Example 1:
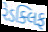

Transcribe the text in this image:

રેડક્લિફ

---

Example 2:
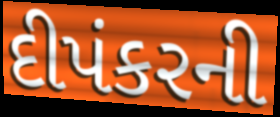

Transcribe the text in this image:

દીપંકરની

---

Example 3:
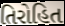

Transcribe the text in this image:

તિરોહિત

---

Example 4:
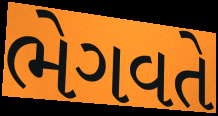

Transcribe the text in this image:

ભેગવતે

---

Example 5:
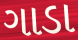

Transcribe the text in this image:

ગાડા